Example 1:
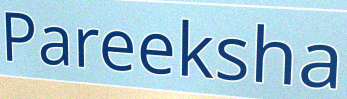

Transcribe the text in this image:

Pareeksha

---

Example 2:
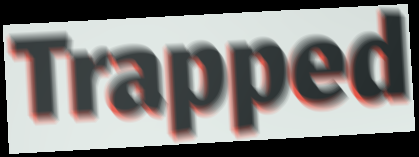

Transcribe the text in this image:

Trapped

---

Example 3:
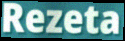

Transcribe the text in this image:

Rezeta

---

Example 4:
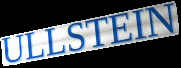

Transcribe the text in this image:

ULLSTEIN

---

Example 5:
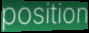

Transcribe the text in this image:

position